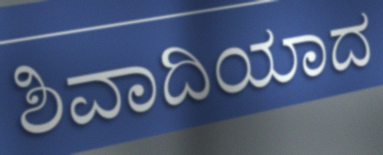
ಶಿವಾದಿಯಾದ